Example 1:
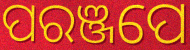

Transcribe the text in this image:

ପରଞ୍ଜପେ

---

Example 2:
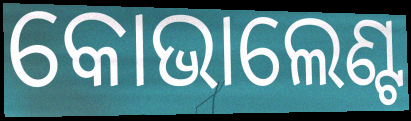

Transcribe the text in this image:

କୋଭାଲେଣ୍ଟ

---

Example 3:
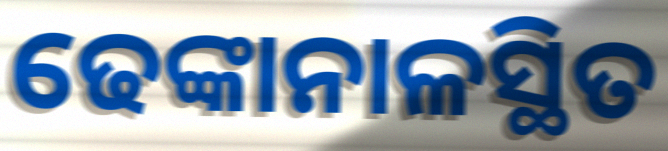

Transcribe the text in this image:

ଢେଙ୍କାନାଳସ୍ଥିତ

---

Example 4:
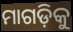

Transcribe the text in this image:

ମାଗଡ଼ିକୁ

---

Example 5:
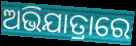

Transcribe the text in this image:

ଅଭିଯାତ୍ରାରେ